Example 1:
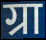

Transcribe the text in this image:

ग्रा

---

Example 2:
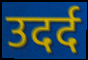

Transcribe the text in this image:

उदर्द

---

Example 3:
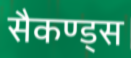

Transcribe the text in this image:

सैकण्ड्स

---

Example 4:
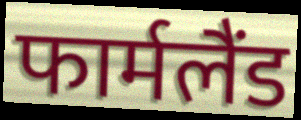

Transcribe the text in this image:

फार्मलैंड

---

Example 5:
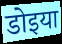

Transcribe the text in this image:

डोइया